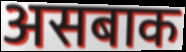
असबाक